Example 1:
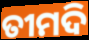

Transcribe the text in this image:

ତୀମଦି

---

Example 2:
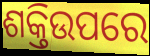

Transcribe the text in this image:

ଶକ୍ତିଉପରେ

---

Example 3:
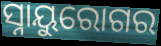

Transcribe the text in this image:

ସ୍ନାୟୁରୋଗର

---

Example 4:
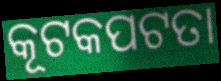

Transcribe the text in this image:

କୂଟକପଟତା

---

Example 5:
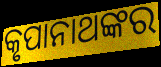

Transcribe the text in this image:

କୃପାନାଥଙ୍କର